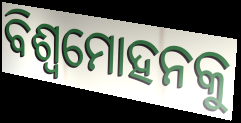
ବିଶ୍ଵମୋହନକୁ